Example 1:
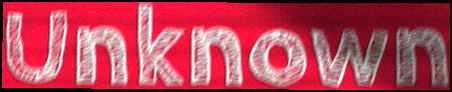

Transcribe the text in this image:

Unknown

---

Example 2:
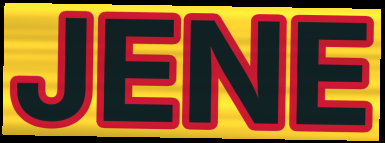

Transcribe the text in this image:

JENE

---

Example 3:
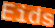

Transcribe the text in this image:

Eids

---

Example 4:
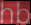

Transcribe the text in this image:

hb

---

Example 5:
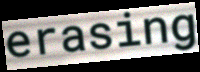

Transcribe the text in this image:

erasing